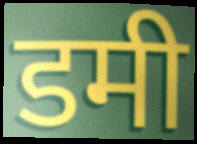
डमी